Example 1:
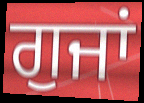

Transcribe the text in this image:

ਗੁਜਾਂ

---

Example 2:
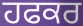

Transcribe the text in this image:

ਹਫਕਰ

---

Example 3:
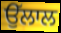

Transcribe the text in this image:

ਉੱਲਾਲ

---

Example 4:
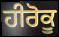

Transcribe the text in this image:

ਹੀਰੋਕੂ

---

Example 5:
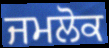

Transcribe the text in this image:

ਜਮਲੋਕ